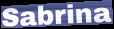
Sabrina